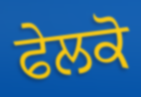
ਫੇਲਕੋ